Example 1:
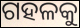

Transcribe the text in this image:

ଗହଳକୁ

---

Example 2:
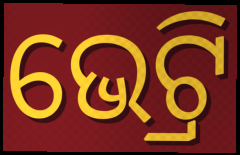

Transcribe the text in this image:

ଭେଟ୍ରି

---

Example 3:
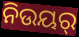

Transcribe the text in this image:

ନିଉୟର୍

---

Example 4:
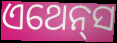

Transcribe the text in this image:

ଏଥେନ୍‌ସ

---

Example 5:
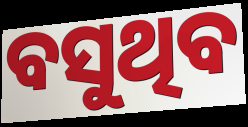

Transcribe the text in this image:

ବସୁଥିବ